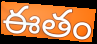
ఈతం